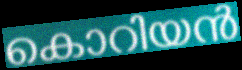
കൊറിയൻ